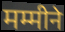
मम्मीने